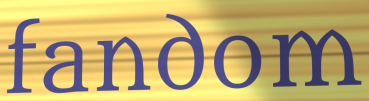
fandom